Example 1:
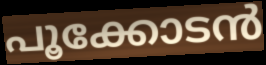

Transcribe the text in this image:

പൂക്കോടൻ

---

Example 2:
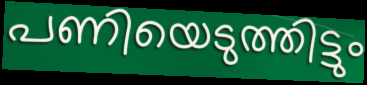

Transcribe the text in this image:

പണിയെടുത്തിട്ടും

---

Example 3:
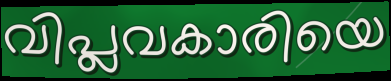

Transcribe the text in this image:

വിപ്ലവകാരിയെ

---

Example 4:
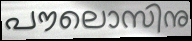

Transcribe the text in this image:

പൗലൊസിനു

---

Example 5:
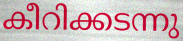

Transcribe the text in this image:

കീറിക്കടന്നു